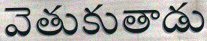
వెతుకుతాడు